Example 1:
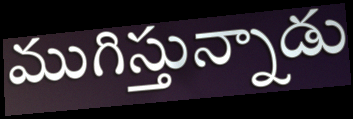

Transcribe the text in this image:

ముగిస్తున్నాడు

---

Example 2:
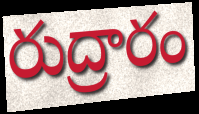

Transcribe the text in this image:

రుద్రారం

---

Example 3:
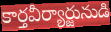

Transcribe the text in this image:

కార్తవీర్యార్జునుడి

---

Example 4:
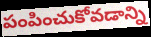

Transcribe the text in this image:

పంపించుకోవడాన్ని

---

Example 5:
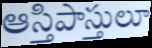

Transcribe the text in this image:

ఆస్తిపాస్తులూ